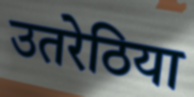
उतरेठिया